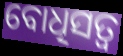
ବୋଧିସତ୍ବ